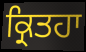
ਕ੍ਰਿਤਹਾ